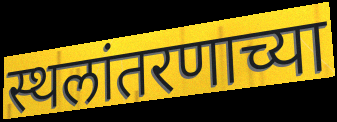
स्थलांतरणाच्या